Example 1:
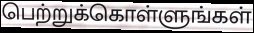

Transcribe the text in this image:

பெற்றுக்கொள்ளுங்கள்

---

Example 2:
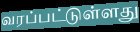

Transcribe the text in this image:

வரப்பட்டுள்ளது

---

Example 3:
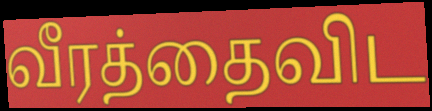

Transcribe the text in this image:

வீரத்தைவிட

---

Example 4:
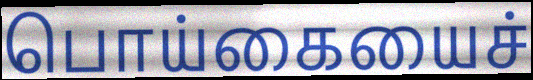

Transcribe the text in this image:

பொய்கையைச்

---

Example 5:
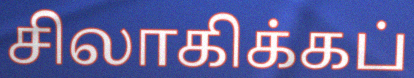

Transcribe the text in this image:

சிலாகிக்கப்